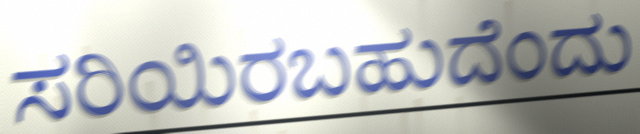
ಸರಿಯಿರಬಹುದೆಂದು